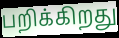
பறிக்கிறது